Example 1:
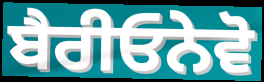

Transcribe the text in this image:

ਬੈਰੀਓਨੇਵੋ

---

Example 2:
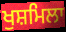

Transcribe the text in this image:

ਖੁਸ਼ਮਿਲਾ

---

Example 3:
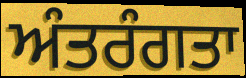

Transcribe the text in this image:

ਅੰਤਰੰਗਤਾ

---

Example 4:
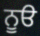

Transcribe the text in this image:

ਨੂੳ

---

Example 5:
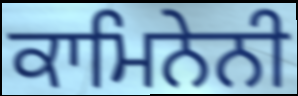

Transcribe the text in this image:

ਕਾਮਿਨੇਨੀ